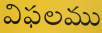
విఫలము